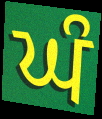
ਘੰ